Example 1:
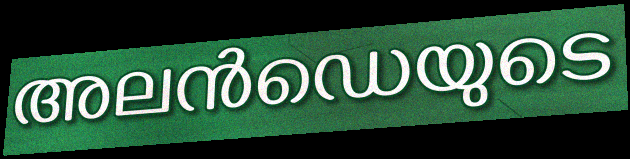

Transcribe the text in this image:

അലൻഡെയുടെ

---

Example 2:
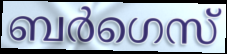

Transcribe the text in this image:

ബർഗെസ്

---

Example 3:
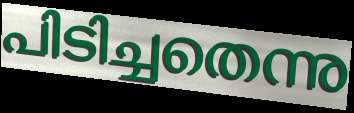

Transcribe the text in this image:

പിടിച്ചതെന്നു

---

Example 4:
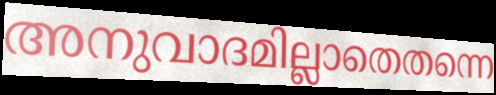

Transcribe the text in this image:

അനുവാദമില്ലാതെതന്നെ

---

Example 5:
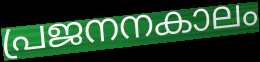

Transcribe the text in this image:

പ്രജനനകാലം